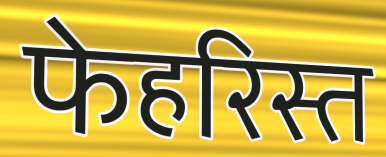
फेहरिस्त